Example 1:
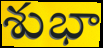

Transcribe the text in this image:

శుభా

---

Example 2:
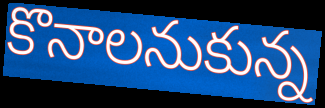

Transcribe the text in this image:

కొనాలనుకున్న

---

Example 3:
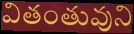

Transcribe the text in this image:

వితంతువుని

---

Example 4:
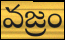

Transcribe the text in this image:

వజ్రం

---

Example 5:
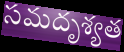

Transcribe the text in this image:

సమదృశ్యత